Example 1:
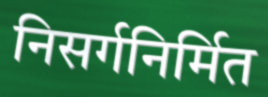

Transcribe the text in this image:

निसर्गनिर्मित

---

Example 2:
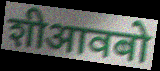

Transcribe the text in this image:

शीआवबो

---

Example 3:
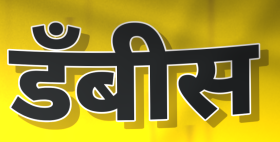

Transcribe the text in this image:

डॅंबीस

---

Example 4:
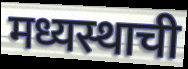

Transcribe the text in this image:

मध्यस्थाची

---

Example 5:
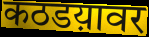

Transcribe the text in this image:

कठडय़ावर